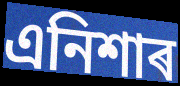
এনিশাৰ